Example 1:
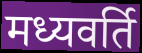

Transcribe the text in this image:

मध्यवर्ति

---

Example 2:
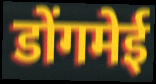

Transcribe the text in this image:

डोंगमेई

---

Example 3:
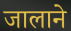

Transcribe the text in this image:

जालाने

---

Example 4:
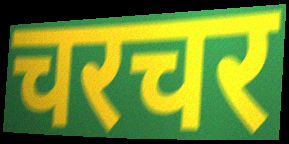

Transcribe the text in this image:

चरचर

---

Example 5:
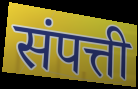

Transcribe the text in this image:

संपत्ती